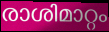
രാശിമാറ്റം